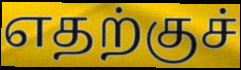
எதற்குச்